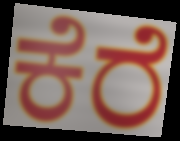
ಕೆರೆ